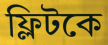
ফ্লিটকে